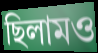
ছিলামও